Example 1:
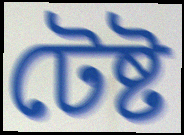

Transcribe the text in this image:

টেষ্ট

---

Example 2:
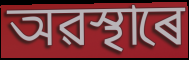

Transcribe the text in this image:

অৱস্থাৰে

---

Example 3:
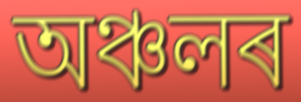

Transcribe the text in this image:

অঞ্চলৰ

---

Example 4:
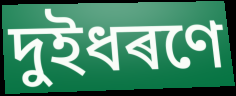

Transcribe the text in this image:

দুইধৰণে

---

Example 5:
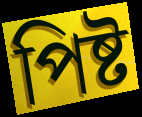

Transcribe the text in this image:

পিষ্ট